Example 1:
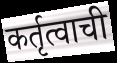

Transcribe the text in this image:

कर्तृत्वाची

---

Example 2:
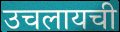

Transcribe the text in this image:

उचलायची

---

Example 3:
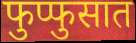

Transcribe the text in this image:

फुप्फुसात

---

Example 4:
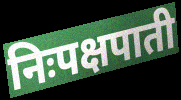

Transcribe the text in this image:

निःपक्षपाती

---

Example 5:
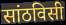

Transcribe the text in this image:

सांठविसी